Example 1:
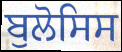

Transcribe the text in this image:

ਬੁਲੋਸਿਸ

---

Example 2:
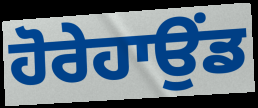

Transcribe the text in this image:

ਹੋਰੇਹਾਉਂਡ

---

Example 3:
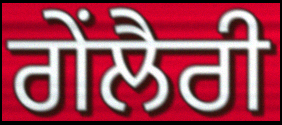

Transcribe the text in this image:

ਗੇਂਲੈਰੀ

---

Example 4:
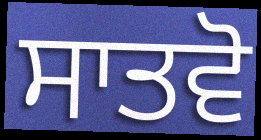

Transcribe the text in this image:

ਸਾਤਵੋ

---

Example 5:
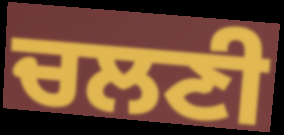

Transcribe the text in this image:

ਚਲਣੀ